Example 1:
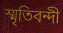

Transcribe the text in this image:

স্মৃতিবন্দী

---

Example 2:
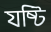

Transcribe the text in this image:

যষ্টি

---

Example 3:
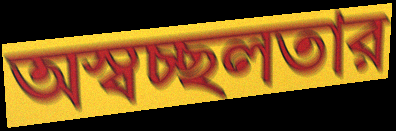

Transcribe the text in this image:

অস্বচ্ছলতার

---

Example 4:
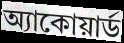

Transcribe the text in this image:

অ্যাকোয়ার্ড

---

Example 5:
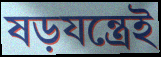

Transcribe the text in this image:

ষড়যন্ত্রেই